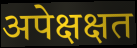
अपेक्षक्षत